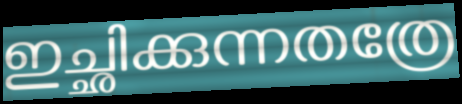
ഇച്ഛിക്കുന്നതത്രേ